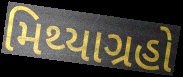
મિથ્યાગ્રહો